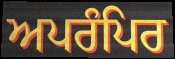
ਅਪਰੰਪਿਰ